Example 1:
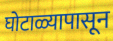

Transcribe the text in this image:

घोटाळ्यापासून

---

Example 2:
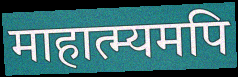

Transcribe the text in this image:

माहात्म्यमपि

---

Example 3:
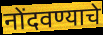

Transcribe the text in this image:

नोंदवण्याचे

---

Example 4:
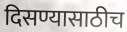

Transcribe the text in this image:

दिसण्यासाठीच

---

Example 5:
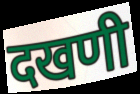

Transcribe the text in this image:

दखणी